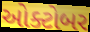
ઓક્ટોબર